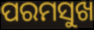
ପରମସୁଖ